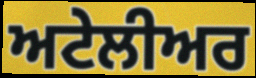
ਅਟੇਲੀਅਰ